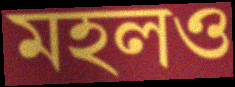
মহলও